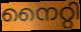
നൈറ്റി